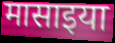
मासाइया